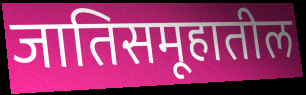
जातिसमूहातील